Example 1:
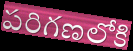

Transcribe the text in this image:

పరిగణలోకి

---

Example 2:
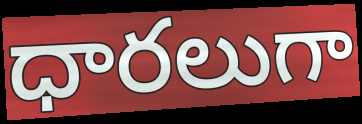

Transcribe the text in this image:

ధారలుగా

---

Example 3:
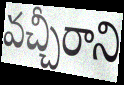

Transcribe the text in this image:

వచ్చీరాని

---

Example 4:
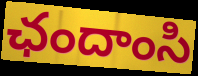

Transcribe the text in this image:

ఛందాంసి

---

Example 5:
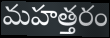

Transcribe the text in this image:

మహత్తరం